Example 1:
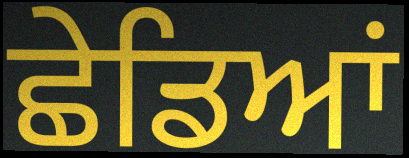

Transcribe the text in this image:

ਛੇਡਿਆਂ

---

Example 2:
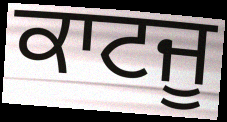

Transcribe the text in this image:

ਕਾਟਜੂ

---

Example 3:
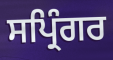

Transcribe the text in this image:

ਸਪ੍ਰਿੰਗਰ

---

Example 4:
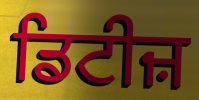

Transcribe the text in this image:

ਡਿਟੀਜ਼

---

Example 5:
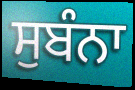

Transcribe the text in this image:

ਸੁਬੰਨਾ